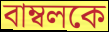
বাম্বলকে